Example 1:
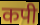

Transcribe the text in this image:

कपी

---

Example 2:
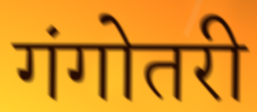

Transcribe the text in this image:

गंगोतरी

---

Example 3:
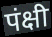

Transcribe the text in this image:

पंक्षी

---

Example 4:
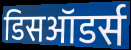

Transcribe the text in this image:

डिसऑडर्स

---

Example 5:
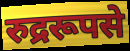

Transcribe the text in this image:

रुद्ररूपसे